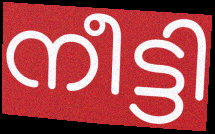
നീട്ടി